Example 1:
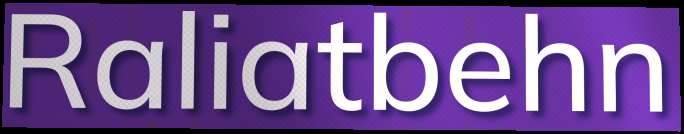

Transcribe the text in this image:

Raliatbehn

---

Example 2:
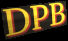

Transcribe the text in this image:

DPB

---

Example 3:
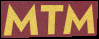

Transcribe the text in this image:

MTM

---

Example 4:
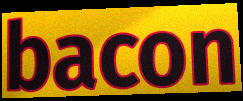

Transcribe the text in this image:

bacon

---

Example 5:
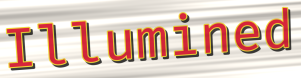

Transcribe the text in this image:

Illumined